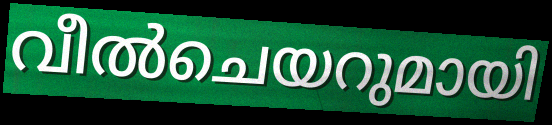
വീൽചെയറുമായി